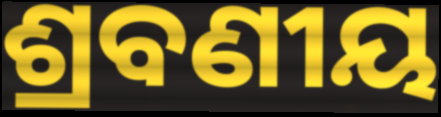
ଶ୍ରବଣୀୟ